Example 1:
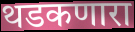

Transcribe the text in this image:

थडकणारा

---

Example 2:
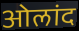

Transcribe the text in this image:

ओलांद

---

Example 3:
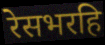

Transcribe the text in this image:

रेसभरहि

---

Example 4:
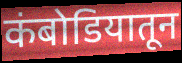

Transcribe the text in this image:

कंबोडियातून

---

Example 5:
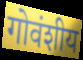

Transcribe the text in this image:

गोवंशीय